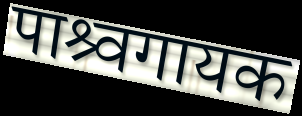
पाश्र्वगायक